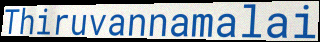
Thiruvannamalai